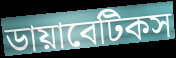
ডায়াবেটিকস